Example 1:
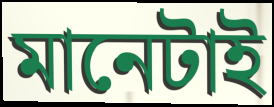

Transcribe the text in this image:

মানেটাই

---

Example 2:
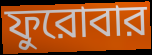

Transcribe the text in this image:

ফুরোবার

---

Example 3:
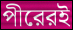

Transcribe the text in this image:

পীরেরই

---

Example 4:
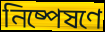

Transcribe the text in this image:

নিষ্পেষণে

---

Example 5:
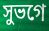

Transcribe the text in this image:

সুভগে